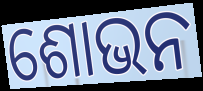
ଶୋଭନ